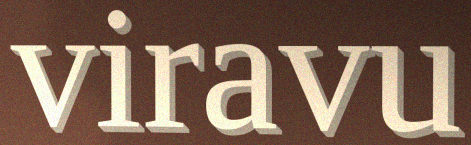
viravu